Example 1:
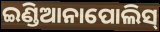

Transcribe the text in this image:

ଇଣ୍ଡିଆନାପୋଲିସ୍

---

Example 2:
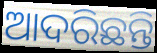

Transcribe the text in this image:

ଆଦରିଛନ୍ତି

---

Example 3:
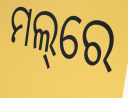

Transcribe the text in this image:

ମଲ୍‌ରେ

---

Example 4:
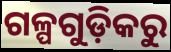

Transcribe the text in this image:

ଗଳ୍ପଗୁଡ଼ିକରୁ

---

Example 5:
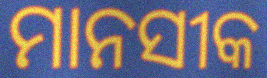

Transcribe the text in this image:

ମାନସୀକ